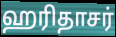
ஹரிதாசர்